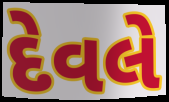
દેવલે